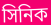
সিনিক